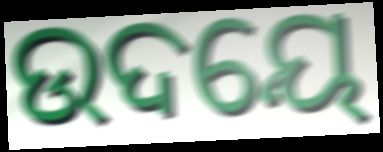
ଉଦୟେ